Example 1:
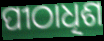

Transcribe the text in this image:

ପୀଠାଧିଶ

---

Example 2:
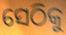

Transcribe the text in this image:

ସେଠିକୁ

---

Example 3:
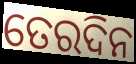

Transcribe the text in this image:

ତେରଦିନ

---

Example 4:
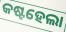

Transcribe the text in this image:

କଷ୍ଟହେଲା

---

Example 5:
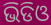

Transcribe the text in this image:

ଭିଡିଓ